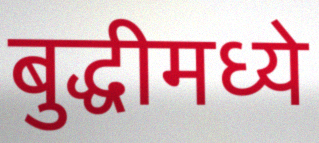
बुद्धीमध्ये